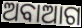
ଅବାଆଗ